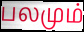
பலமும்